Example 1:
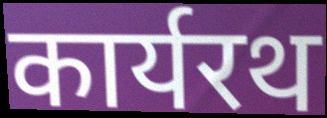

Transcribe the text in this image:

कार्यरथ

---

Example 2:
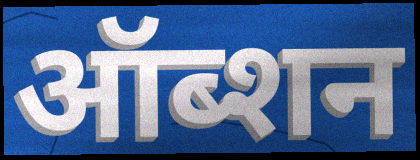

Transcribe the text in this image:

ऑब्शन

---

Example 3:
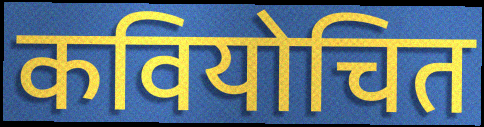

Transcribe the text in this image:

कवियोचित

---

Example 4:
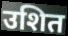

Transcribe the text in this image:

उशित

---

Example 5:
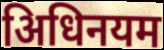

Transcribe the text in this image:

अिधिनयम